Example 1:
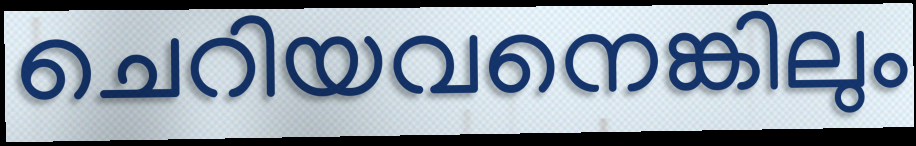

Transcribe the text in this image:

ചെറിയവനെങ്കിലും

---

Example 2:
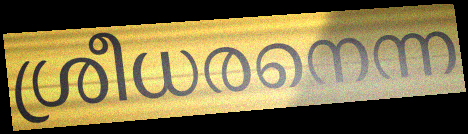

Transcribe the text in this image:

ശ്രീധരനെന്ന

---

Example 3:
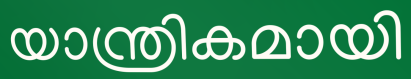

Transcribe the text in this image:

യാന്ത്രികമായി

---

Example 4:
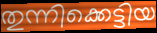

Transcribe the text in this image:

തുന്നിക്കെട്ടിയ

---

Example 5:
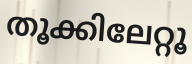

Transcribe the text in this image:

തൂക്കിലേറ്റൂ